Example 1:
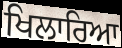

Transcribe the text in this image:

ਖਿਲਾਰਿਆ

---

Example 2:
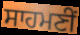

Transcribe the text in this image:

ਸਾਹਮਣੀਂ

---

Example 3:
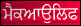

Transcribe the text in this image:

ਮੈਕਆਉਲਿਫ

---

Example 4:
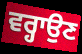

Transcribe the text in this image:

ਵਰ੍ਹਾਉਣ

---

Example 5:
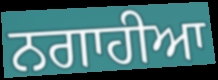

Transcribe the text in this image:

ਨਗਾਹੀਆ